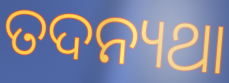
ତଦନ୍ୟଥା